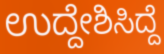
ಉದ್ದೇಶಿಸಿದ್ದೆ